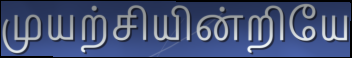
முயற்சியின்றியே